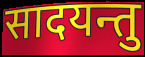
सादयन्तु